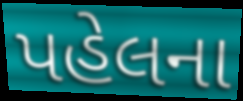
પહેલના